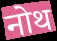
नोथ